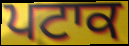
ਪਟਾਕ